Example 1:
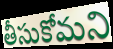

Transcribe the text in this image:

తీసుకోమని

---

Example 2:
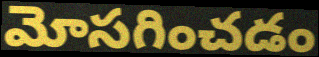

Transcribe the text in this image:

మోసగించడం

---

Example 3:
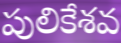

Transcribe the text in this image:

పులికేశవ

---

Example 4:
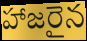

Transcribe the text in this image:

హాజరైన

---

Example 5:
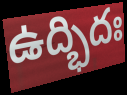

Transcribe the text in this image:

ఉద్భిదః